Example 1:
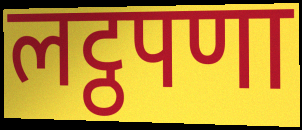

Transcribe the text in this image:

लट्ठपणा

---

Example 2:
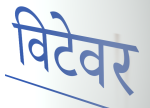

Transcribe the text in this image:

विटेवर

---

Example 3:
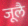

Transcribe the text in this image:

जूलै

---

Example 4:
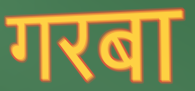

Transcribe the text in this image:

गरबा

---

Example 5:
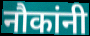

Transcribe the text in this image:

नौकांनी